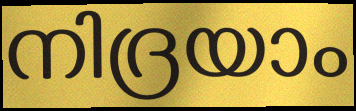
നിദ്രയാം